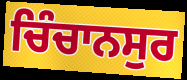
ਚਿੰਚਾਨਸੁਰ